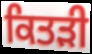
ਕਿਤੜੀ